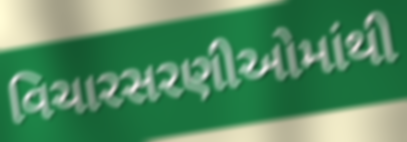
વિચારસરણીઓમાંથી